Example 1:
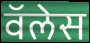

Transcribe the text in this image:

वॅलेस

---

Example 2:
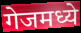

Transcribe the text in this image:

गेजमध्ये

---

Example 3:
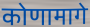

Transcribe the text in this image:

कोणामागे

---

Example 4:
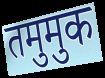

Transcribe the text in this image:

तमुमुक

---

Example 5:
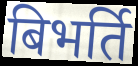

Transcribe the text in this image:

बिभर्ति